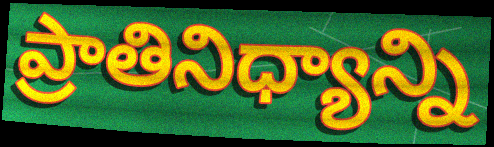
ప్రాతినిధ్యాన్ని